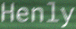
Henly